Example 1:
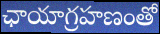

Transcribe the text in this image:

ఛాయాగ్రహణంతో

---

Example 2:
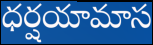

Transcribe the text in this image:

ధర్షయామాస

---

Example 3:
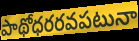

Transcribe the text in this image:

పాథోధరరవపటునా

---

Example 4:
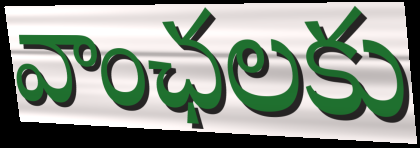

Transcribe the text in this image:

వాంఛలకు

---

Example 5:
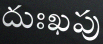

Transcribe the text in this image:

దుఃఖపు